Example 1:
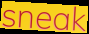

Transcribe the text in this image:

sneak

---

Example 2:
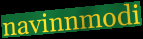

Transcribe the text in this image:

navinnmodi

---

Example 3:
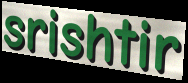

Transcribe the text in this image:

srishtir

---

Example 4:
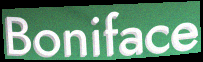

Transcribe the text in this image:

Boniface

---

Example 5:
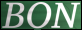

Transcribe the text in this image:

BON